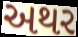
અથર